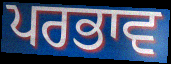
ਪਰਭਾਵ